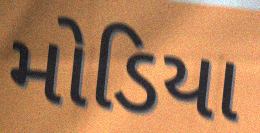
મોડિયા